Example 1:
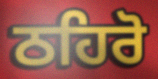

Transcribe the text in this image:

ਠਹਿਰੋ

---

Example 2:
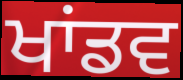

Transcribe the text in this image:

ਖਾਂਡਵ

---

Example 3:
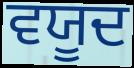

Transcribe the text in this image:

ਵਯੂਦ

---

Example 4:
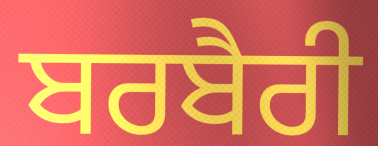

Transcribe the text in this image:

ਬਰਬੈਰੀ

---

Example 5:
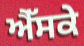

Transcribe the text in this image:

ਐੱਸਕੇ